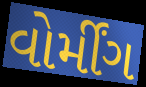
વોર્મીંગ